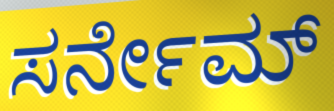
ಸರ್ನೇಮ್